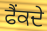
ਫੈਂਕਦੇ